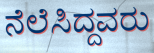
ನೆಲೆಸಿದ್ದವರು